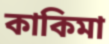
কাকিমা